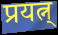
प्रयत्न्